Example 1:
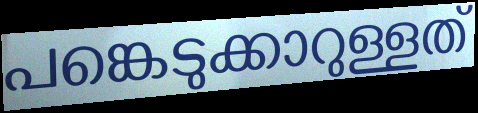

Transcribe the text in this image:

പങ്കെടുക്കാറുള്ളത്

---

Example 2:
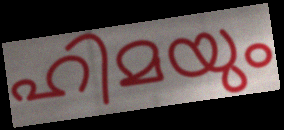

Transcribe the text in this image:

ഹിമയും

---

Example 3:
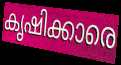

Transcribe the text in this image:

കൃഷിക്കാരെ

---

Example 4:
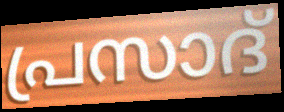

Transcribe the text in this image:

പ്രസാദ്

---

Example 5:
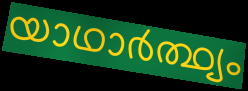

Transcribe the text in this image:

യാഥാർത്ഥ്യം